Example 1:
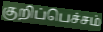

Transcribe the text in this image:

குறிப்பெச்சம்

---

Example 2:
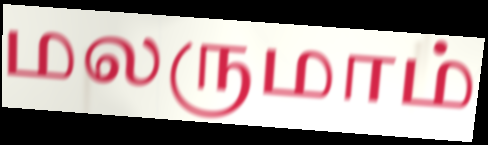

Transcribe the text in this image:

மலருமாம்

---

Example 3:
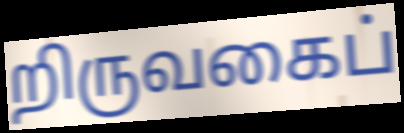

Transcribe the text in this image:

றிருவகைப்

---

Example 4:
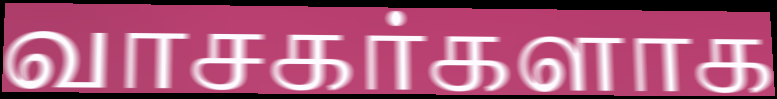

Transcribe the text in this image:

வாசகர்களாக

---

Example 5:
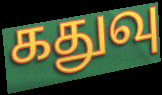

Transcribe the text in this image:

கதுவு